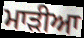
ਮਾੜੀਆ